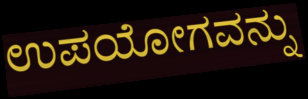
ಉಪಯೋಗವನ್ನು